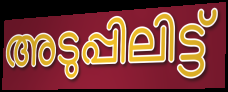
അടുപ്പിലിട്ട്